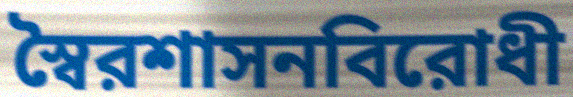
স্বৈরশাসনবিরোধী